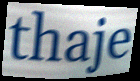
thaje